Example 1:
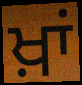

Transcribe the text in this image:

ਖ਼ਾਂ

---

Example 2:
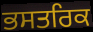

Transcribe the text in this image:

ਭਸਤਰਿਕ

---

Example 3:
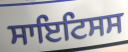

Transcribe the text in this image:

ਸਾਇਟਿਸਸ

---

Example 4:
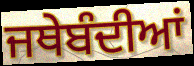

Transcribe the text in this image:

ਜਥੇਬੰਦੀਆਂ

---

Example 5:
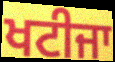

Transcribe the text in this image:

ਖਟੀਜਾ